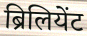
ब्रिलियेंट